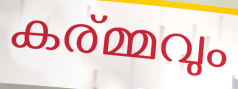
കര്മ്മവും